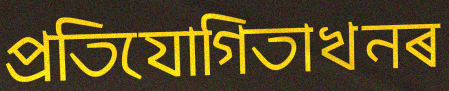
প্ৰতিযোগিতাখনৰ